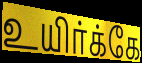
உயிர்க்கே